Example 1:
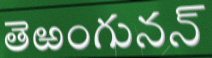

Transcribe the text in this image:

తెఱంగునన్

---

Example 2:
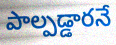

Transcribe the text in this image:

పాల్పడ్డారనే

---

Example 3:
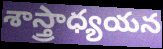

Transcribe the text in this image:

శాస్త్రాధ్యయన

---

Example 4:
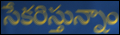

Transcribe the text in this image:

సేకరిస్తున్నాం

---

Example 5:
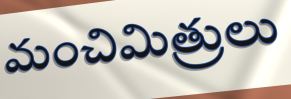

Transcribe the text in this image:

మంచిమిత్రులు